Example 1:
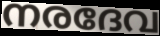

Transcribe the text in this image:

നരദേവ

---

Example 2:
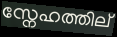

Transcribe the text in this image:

സ്നേഹത്തില്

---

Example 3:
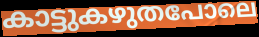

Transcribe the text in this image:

കാട്ടുകഴുതപോലെ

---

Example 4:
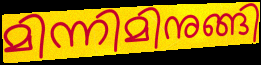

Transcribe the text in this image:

മിന്നിമിനുങ്ങി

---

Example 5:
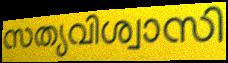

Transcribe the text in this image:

സത്യവിശ്വാസി